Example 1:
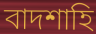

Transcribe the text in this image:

বাদশাহি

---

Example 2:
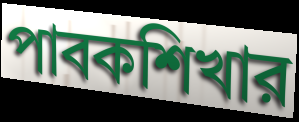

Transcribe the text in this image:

পাবকশিখার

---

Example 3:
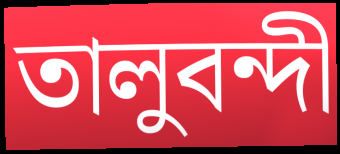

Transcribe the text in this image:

তালুবন্দী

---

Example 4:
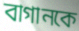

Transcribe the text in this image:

বাগানকে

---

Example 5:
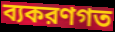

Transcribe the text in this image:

ব্যকরণগত